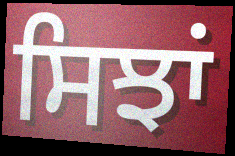
ਸਿਝਾਂ